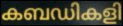
കബഡികളി